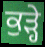
ਕੁੜ੍ਹੇ